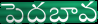
పెదబావ